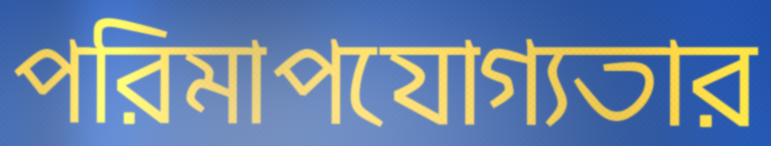
পরিমাপযোগ্যতার